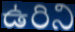
ఉరిని